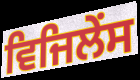
ਵਿਜਿਲੇਂਸ